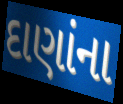
દાણાંના